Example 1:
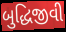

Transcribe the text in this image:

બુદ્ધિજીવી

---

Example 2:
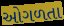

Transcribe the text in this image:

ઓગળતા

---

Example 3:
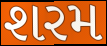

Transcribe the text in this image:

શરમ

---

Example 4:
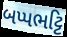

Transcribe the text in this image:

બપ્પભટ્ટિ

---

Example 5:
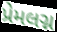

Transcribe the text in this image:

પ્રેમલગ્ન